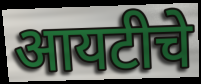
आयटीचे